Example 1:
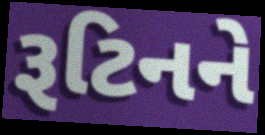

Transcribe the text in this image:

રૂટિનને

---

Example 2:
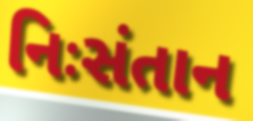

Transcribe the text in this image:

નિઃસંતાન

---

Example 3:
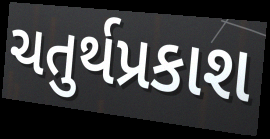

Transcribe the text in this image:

ચતુર્થપ્રકાશ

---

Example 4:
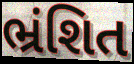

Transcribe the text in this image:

ભ્રંશિત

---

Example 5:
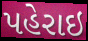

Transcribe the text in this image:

પહેરાઇ